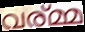
വര്മ്മ